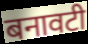
बनावटी